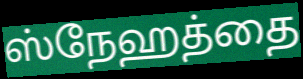
ஸ்நேஹத்தை